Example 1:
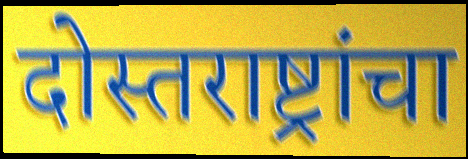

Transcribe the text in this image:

दोस्तराष्ट्रांचा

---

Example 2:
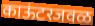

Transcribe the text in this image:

काऊंटरजवळ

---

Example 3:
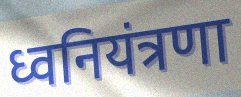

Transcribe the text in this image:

ध्वनियंत्रणा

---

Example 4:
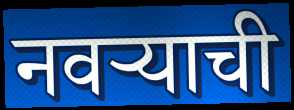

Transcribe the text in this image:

नवऱ्याची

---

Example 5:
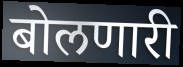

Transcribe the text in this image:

बोलणारी